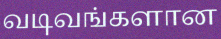
வடிவங்களான